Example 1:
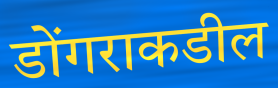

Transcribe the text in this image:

डोंगराकडील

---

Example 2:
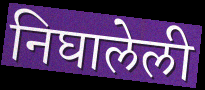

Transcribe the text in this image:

निघालेली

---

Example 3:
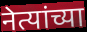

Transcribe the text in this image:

नेत्यांच्या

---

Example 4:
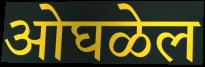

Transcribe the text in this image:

ओघळेल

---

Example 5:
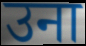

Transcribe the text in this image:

उना